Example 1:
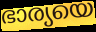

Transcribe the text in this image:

ഭാര്യയെ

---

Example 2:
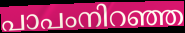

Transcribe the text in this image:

പാപംനിറഞ്ഞ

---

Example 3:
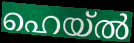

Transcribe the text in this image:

ഹെയ്ൽ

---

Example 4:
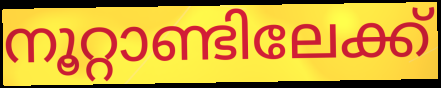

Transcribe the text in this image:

നൂറ്റാണ്ടിലേക്ക്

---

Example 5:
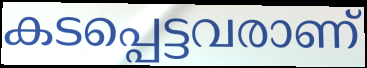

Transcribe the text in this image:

കടപ്പെട്ടവരാണ്